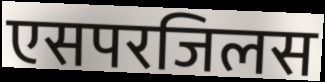
एसपरजिलस